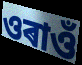
ওৰাওঁ